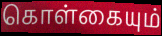
கொள்கையும்